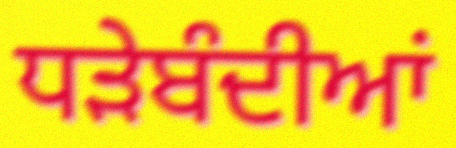
ਧੜੇਬੰਦੀਆਂ